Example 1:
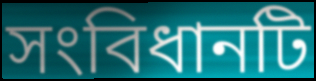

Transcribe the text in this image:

সংবিধানটি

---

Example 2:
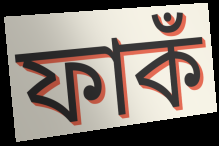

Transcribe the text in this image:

ফাকঁ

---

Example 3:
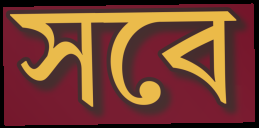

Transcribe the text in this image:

সবে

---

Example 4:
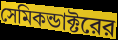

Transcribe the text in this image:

সেমিকন্ডাক্টরের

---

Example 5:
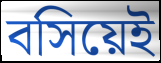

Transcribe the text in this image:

বসিয়েই